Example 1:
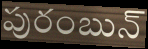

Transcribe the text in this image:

పురంబున్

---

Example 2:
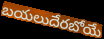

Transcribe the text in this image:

బయలుదేరబోయే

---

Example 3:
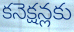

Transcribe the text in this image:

కనెక్షన్లకు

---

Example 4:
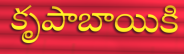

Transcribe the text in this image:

కృపాబాయికి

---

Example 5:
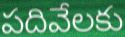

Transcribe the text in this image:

పదివేలకు